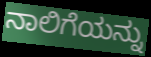
ನಾಲಿಗೆಯನ್ನು